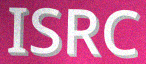
ISRC